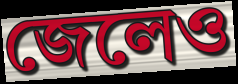
জেলেও